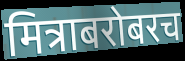
मित्राबरोबरच